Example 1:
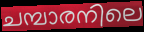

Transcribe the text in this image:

ചമ്പാരനിലെ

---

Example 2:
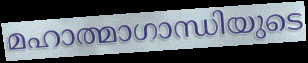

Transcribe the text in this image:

മഹാത്മാഗാന്ധിയുടെ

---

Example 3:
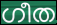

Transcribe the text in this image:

ഗീത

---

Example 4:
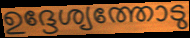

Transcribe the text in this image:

ഉദ്ദേശ്യത്തോടു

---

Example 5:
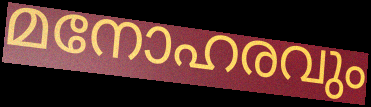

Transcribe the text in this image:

മനോഹരവും